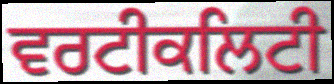
ਵਰਟੀਕਲਿਟੀ